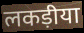
लकड़ीया